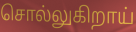
சொல்லுகிறாய்